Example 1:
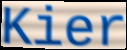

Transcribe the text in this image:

Kier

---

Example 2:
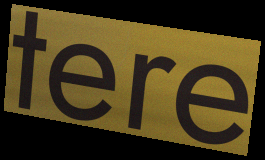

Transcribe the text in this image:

tere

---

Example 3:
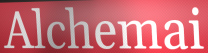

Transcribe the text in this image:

Alchemai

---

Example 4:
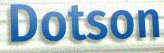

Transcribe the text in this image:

Dotson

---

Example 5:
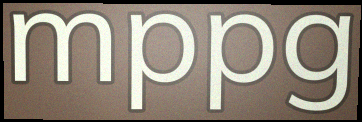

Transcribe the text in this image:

mppg